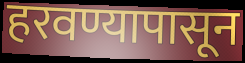
हरवण्यापासून